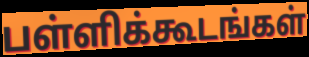
பள்ளிக்கூடங்கள்